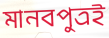
মানবপুত্রই